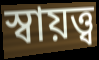
স্বায়ত্ত্ব